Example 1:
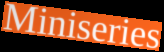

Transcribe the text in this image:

Miniseries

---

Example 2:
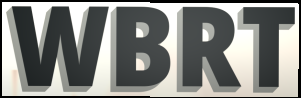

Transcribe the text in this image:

WBRT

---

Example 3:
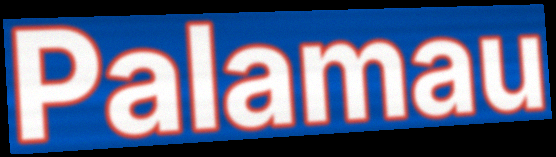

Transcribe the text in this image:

Palamau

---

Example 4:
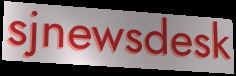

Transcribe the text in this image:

sjnewsdesk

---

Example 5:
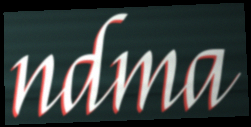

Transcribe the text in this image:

ndma